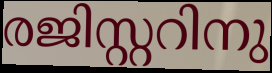
രജിസ്റ്ററിനു